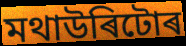
মথাউৰিটোৰ